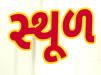
સ્થૂળ